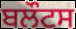
ਬਲੌਟਸ